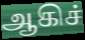
ஆகிச்